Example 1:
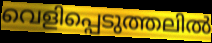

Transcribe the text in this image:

വെളിപ്പെടുത്തലിൽ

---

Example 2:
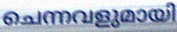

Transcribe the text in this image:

ചെന്നവളുമായി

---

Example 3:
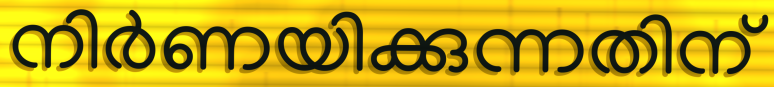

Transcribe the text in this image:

നിർണയിക്കുന്നതിന്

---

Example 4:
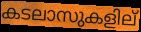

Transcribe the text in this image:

കടലാസുകളില്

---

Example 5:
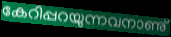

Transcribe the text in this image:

കേറിപ്പറയുന്നവനാണു്